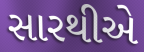
સારથીએ